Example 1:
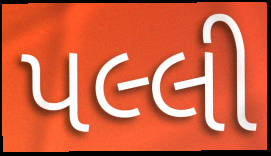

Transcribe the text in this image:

પલ્લી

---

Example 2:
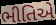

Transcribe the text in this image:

ભીતિએ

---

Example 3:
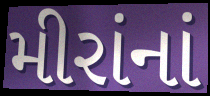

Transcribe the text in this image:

મીરાંનાં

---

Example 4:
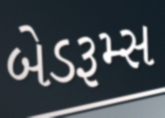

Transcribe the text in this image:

બેડરૂમ્સ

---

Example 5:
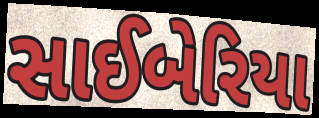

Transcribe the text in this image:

સાઈબેરિયા